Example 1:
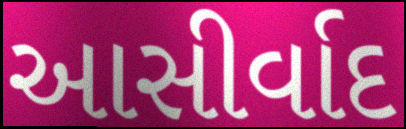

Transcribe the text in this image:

આસીર્વાદ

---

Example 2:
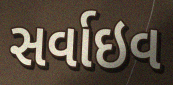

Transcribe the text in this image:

સર્વાઇવ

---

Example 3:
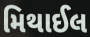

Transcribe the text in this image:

મિથાઈલ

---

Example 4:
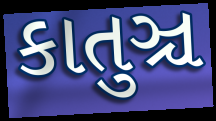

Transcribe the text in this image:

કાતુઞ્ચ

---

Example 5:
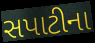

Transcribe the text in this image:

સપાટીના